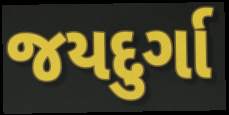
જયદુર્ગા